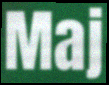
Maj